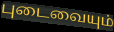
புடைவையும்